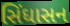
સિંઘાસન